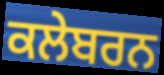
ਕਲੇਬਰਨ